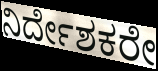
ನಿರ್ದೇಶಕರೇ